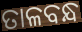
ତାଳବନ୍ଧ